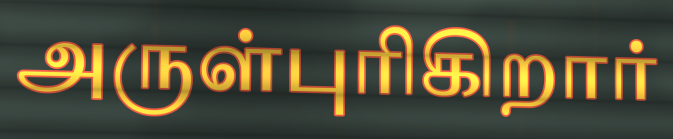
அருள்புரிகிறார்